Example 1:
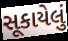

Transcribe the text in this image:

સૂકાયેલું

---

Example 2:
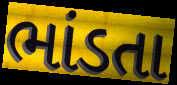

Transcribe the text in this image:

ભાંડતા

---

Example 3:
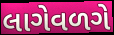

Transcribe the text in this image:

લાગેવળગે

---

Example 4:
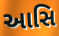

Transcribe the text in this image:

આસિ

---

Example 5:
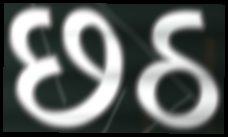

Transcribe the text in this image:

છઠ